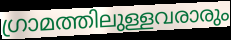
ഗ്രാമത്തിലുള്ളവരാരും